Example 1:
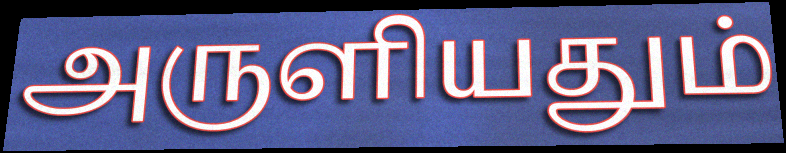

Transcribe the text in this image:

அருளியதும்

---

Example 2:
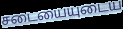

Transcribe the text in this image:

சடையையுடைய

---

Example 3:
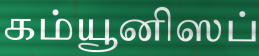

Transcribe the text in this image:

கம்யூனிஸப்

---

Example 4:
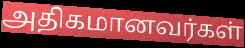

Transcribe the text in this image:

அதிகமானவர்கள்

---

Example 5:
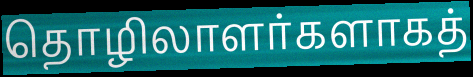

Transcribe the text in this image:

தொழிலாளர்களாகத்